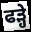
ਫੜ੍ਹੇ